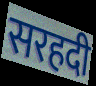
सरहदी